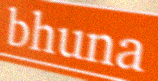
bhuna